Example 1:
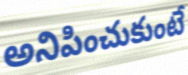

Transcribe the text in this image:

అనిపించుకుంటే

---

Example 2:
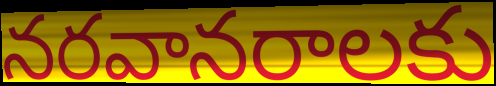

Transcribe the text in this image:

నరవానరాలకు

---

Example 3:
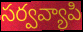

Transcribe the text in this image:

సర్వవ్యాపి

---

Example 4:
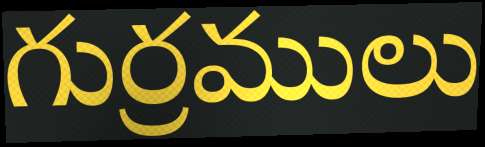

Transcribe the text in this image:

గుర్రములు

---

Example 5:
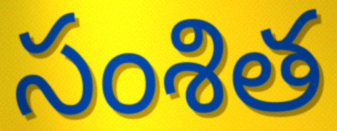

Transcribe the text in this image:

సంశిత